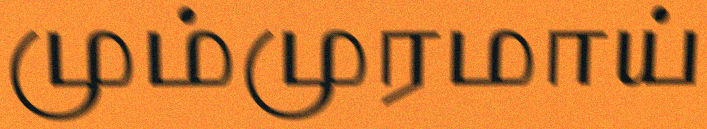
மும்முரமாய்